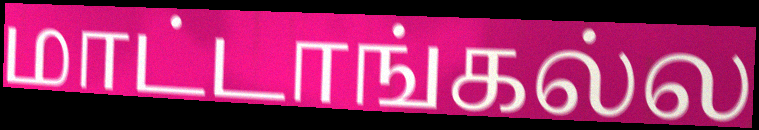
மாட்டாங்கல்ல